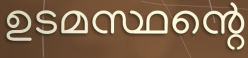
ഉടമസ്ഥന്റെ